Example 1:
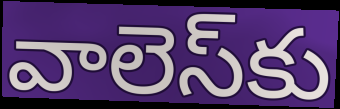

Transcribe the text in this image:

వాలెస్‌కు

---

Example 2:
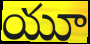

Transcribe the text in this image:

యూ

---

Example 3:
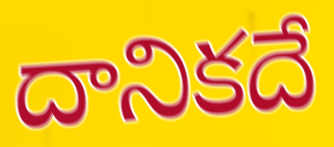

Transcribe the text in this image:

దానికదే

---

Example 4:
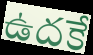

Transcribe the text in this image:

ఉదకే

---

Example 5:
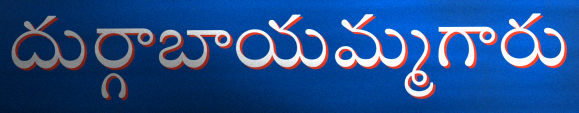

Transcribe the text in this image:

దుర్గాబాయమ్మగారు